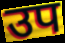
उप